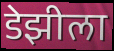
डेझीला